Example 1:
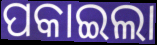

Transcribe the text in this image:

ପକାଇଲା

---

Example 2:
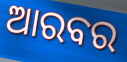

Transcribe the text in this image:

ଆରବର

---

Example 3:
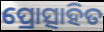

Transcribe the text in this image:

ପ୍ରୋତ୍ସାହିତ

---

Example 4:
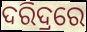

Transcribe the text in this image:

ଦରିଦ୍ରରେ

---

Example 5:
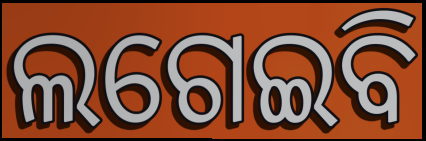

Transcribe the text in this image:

ଲଗେଇବି